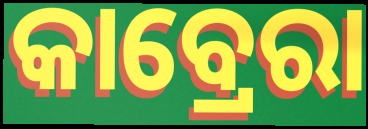
କାବ୍ରେରା